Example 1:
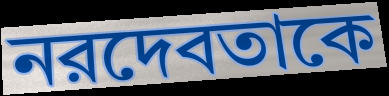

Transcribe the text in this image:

নরদেবতাকে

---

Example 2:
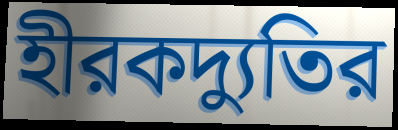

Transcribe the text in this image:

হীরকদ্যুতির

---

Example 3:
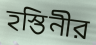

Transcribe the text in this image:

হস্তিনীর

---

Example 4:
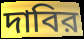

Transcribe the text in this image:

দাবির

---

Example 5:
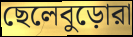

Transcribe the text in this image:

ছেলেবুড়োরা